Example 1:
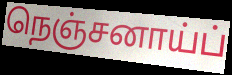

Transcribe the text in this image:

நெஞ்சனாய்ப்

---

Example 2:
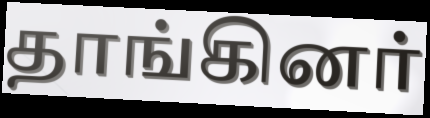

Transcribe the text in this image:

தாங்கினர்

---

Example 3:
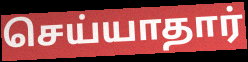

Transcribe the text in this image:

செய்யாதார்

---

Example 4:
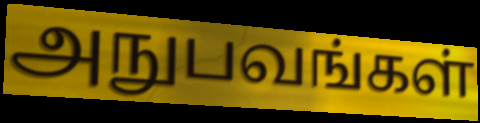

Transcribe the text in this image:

அநுபவங்கள்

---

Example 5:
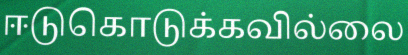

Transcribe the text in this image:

ஈடுகொடுக்கவில்லை